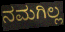
ನಮಗಿಲ್ಲ